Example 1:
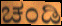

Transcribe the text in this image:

ಚಂಡಿ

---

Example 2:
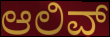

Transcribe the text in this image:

ಆಲಿವ್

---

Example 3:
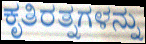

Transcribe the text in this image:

ಕೃತಿರತ್ನಗಳನ್ನು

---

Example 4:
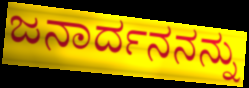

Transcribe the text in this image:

ಜನಾರ್ದನನನ್ನು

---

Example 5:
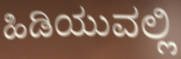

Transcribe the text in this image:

ಹಿಡಿಯುವಲ್ಲಿ